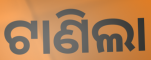
ଟାଣିଲା